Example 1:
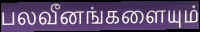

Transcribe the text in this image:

பலவீனங்களையும்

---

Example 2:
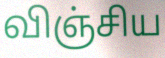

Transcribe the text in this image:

விஞ்சிய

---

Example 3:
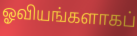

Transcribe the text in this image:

ஓவியங்களாகப்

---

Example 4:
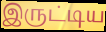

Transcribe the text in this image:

இருட்டிய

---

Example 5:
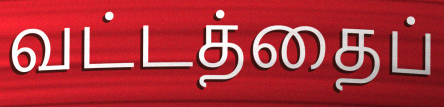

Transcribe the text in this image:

வட்டத்தைப்